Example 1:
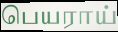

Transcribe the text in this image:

பெயராய்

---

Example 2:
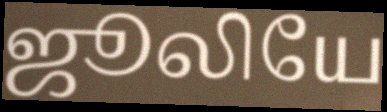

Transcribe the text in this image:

ஜூலியே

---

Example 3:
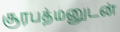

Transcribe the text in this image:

சூரபத்மனுடன்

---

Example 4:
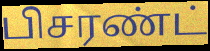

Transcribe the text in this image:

பிசரண்ட்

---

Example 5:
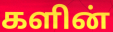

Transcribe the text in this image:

களின்